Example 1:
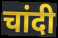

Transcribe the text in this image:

चांदी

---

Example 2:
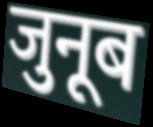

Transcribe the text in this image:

जुनूब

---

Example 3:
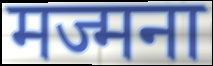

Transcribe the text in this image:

मज्मना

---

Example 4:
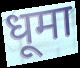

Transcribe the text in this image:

धूमा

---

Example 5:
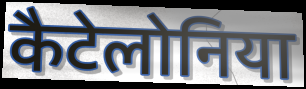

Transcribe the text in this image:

कैटेलोनिया